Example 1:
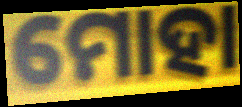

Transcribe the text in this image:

ମୋହା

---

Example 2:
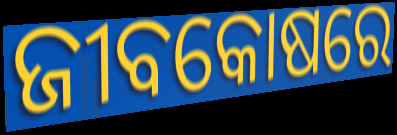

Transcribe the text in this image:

ଜୀବକୋଷରେ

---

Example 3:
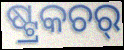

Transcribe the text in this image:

ଷ୍ଟ୍ରକଚର୍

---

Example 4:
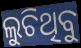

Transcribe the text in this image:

ଲୁଚିଥିବୁ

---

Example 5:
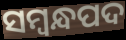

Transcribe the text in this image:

ସମ୍ବନ୍ଧପଦ